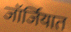
जॉर्जियात